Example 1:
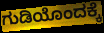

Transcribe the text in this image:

ಗುಡಿಯೊಂದಕ್ಕೆ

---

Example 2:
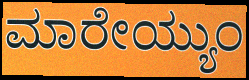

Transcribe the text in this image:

ಮಾರೇಯ್ಯುಂ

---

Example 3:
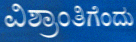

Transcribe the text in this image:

ವಿಶ್ರಾಂತಿಗೆಂದು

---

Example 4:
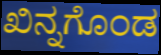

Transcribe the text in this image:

ಖಿನ್ನಗೊಂಡ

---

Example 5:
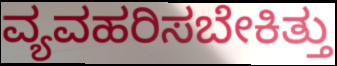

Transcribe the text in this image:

ವ್ಯವಹರಿಸಬೇಕಿತ್ತು